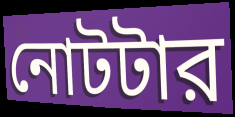
নোটটার